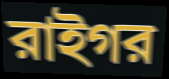
রাইগর